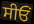
ਸੀਓਂ